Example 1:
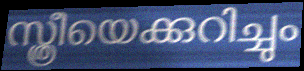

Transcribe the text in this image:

സ്ത്രീയെക്കുറിച്ചും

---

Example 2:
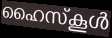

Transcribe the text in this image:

ഹൈസ്‌കൂൾ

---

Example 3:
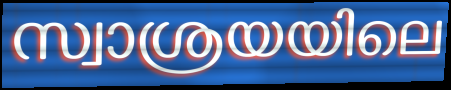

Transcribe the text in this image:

സ്വാശ്രയയിലെ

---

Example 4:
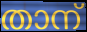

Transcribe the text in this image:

താന്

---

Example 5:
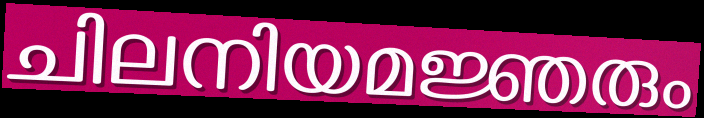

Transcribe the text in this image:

ചിലനിയമജ്ഞരും